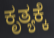
ಕೃತ್ಯಕ್ಕೆ